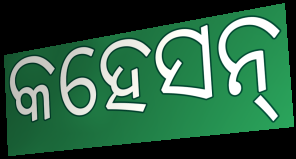
କହେସନ୍